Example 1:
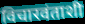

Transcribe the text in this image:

विचारवंताशी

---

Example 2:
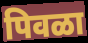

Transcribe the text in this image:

पिवळा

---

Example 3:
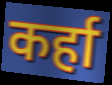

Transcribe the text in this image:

कर्हा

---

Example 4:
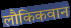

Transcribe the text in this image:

लौकिकवान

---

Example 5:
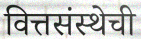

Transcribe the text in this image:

वित्तसंस्थेची